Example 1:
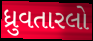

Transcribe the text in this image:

ધ્રુવતારલો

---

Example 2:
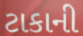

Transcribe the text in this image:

ટાકાની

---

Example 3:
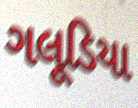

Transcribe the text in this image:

ગલૂડિયા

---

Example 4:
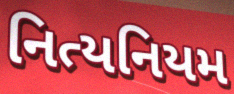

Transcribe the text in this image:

નિત્યનિયમ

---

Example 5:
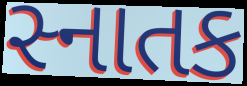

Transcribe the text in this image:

સ્નાતક